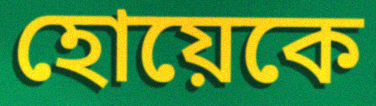
হোয়েকে